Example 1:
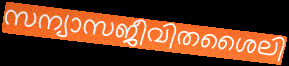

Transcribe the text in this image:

സന്യാസജീവിതശൈലി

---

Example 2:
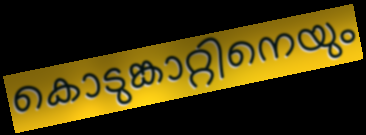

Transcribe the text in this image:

കൊടുങ്കാറ്റിനെയും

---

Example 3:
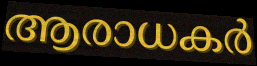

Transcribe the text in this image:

ആരാധകർ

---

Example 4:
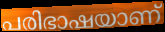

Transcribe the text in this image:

പരിഭാഷയാണ്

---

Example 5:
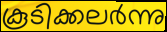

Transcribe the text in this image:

കൂടിക്കലർന്നു